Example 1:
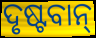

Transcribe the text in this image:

ଦୃଷ୍ଟବାନ୍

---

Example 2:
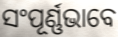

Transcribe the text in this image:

ସଂପୂର୍ଣ୍ଣଭାବେ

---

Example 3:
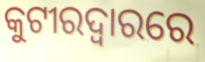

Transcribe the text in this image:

କୁଟୀରଦ୍ୱାରରେ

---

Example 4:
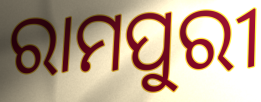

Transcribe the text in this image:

ରାମପୁରୀ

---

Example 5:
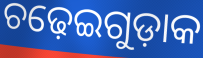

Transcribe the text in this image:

ଚଢ଼େଇଗୁଡ଼ାକ